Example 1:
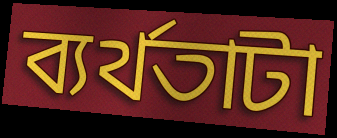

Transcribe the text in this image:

ব্যর্থতাটা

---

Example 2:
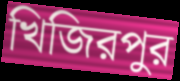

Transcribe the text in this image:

খিজিরপুর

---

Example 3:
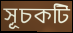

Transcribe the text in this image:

সূচকটি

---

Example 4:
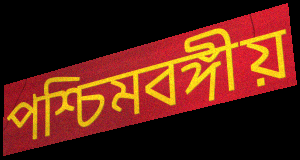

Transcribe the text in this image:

পশ্চিমবঙ্গীয়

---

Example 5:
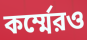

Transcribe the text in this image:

কর্ম্মেরও